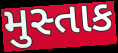
મુસ્તાક